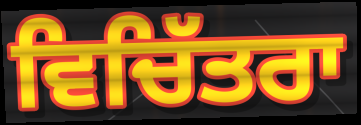
ਵਿਚਿੱਤਰਾ